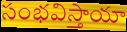
సంభవిస్తాయా